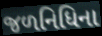
જળનિધિના